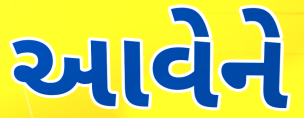
આવેને